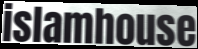
islamhouse